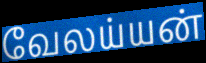
வேலய்யன்